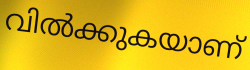
വിൽക്കുകയാണ്